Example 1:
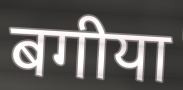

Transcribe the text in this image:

बगीया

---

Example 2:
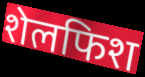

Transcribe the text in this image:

शेलफिश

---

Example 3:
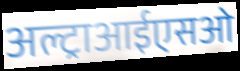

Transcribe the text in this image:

अल्ट्राआईएसओ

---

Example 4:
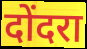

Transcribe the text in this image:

दोंदरा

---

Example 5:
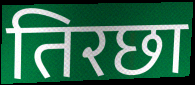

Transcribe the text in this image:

तिरछा